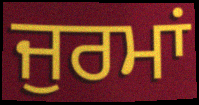
ਜੁਰਮਾਂ